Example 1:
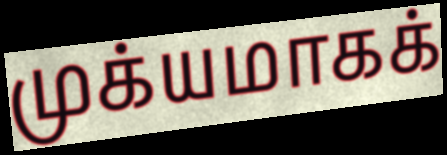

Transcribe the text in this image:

முக்யமாகக்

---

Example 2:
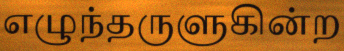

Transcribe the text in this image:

எழுந்தருளுகின்ற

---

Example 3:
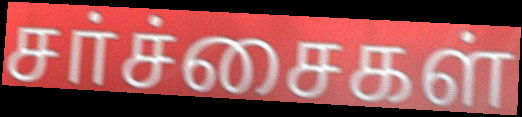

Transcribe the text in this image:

சர்ச்சைகள்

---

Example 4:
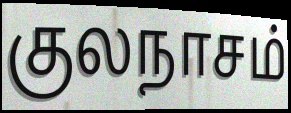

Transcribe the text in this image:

குலநாசம்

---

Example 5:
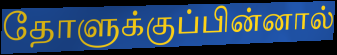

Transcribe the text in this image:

தோளுக்குப்பின்னால்